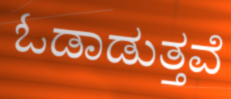
ಓಡಾಡುತ್ತವೆ